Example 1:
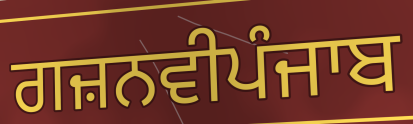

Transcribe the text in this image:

ਗਜ਼ਨਵੀਪੰਜਾਬ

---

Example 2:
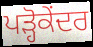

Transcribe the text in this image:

ਪੜ੍ਹੋਕੇਂਦਰ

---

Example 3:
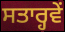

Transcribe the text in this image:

ਸਤਾਰ੍ਹਵੇਂ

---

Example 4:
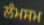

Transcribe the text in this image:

ਲੰਮਸਮ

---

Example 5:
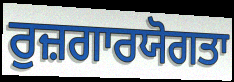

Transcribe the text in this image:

ਰੁਜ਼ਗਾਰਯੋਗਤਾ